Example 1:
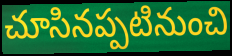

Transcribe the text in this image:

చూసినప్పటినుంచి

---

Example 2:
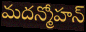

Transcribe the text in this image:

మదన్మోహన్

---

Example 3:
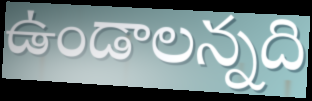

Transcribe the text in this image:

ఉండాలన్నది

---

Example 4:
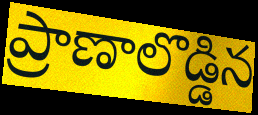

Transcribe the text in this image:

ప్రాణాలొడ్డిన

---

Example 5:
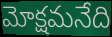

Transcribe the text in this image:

మోక్షమనేది